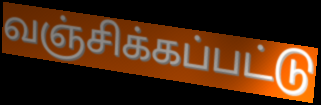
வஞ்சிக்கப்பட்டு